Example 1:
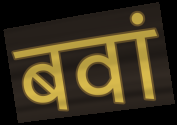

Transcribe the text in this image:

बवां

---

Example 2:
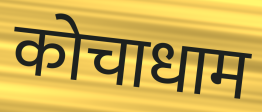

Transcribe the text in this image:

कोचाधाम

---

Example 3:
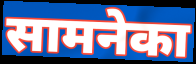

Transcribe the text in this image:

सामनेका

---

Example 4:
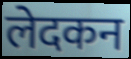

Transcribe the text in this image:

लेदकन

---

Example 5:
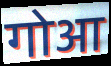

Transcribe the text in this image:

गोआ